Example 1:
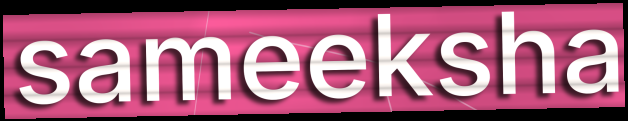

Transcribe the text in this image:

sameeksha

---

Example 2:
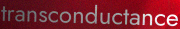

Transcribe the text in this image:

transconductance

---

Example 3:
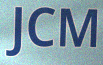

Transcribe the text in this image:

JCM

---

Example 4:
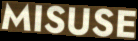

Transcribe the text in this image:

MISUSE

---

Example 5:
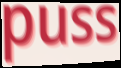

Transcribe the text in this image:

puss